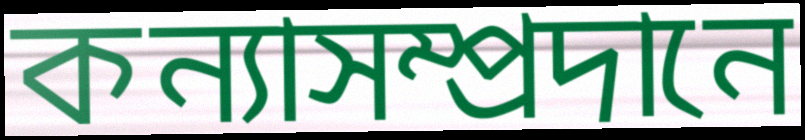
কন্যাসম্প্রদানে